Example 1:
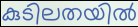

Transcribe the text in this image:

കുടിലതയിൽ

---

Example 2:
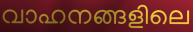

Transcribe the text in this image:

വാഹനങ്ങളിലെ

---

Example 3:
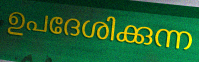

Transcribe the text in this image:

ഉപദേശിക്കുന്ന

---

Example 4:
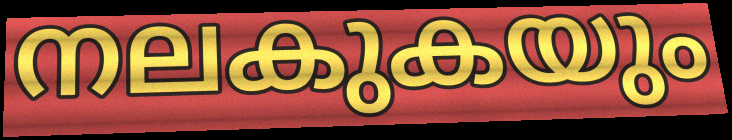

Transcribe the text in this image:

നലകുകയും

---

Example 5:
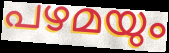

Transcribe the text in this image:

പഴമയും